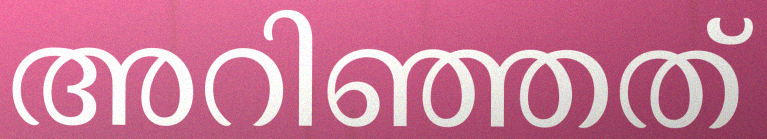
അറിഞ്ഞത്